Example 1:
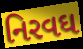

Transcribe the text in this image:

નિરવઘ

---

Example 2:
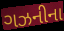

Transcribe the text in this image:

ગઝનીના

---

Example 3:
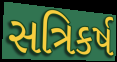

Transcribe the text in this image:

સત્રિકર્ષ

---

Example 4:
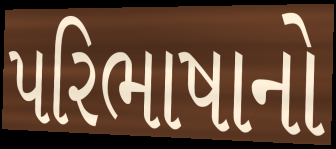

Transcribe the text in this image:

પરિભાષાનો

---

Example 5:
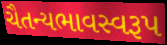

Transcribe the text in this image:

ચૈતન્યભાવસ્વરૂપ